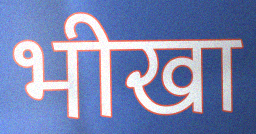
भीखा